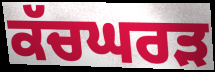
ਕੱਚਘਰੜ